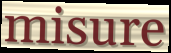
misure